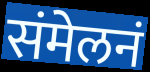
संमेलनं